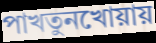
পাখতুনখোয়ায়